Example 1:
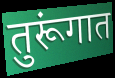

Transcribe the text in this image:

तुरूंगात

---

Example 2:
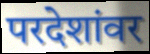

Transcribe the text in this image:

परदेशांवर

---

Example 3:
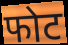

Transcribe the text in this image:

फोट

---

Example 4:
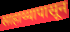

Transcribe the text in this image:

साहाय्यापासून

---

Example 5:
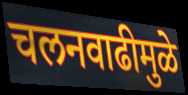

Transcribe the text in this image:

चलनवाढीमुळे